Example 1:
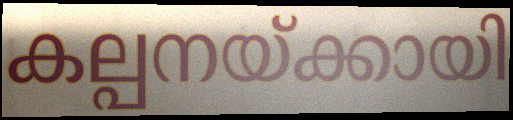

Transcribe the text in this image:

കല്പനയ്ക്കായി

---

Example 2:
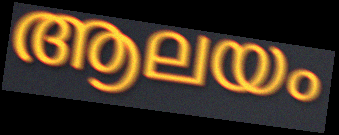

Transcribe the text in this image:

ആലയം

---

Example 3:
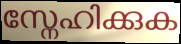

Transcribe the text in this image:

സ്നേഹിക്കുക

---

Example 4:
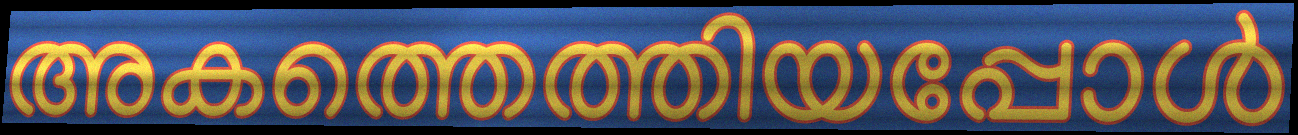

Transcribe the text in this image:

അകത്തെത്തിയപ്പോൾ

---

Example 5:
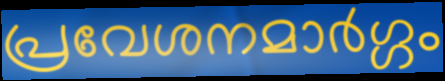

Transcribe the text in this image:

പ്രവേശനമാർഗ്ഗം